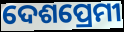
ଦେଶପ୍ରେମୀ